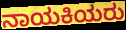
ನಾಯಕಿಯರು